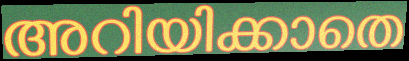
അറിയിക്കാതെ